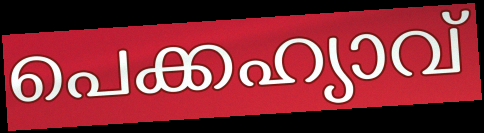
പെക്കഹ്യാവ്